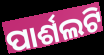
ପାର୍ଶଲଟି